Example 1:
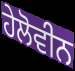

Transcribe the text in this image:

ਹੇਲੋਵੀਨ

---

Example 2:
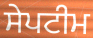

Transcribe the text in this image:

ਸੇਪਟੀਮ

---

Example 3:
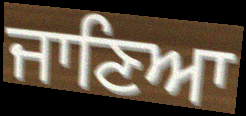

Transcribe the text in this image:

ਜਾਣਿਆ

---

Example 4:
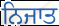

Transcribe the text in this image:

ਨਿਜਾਤ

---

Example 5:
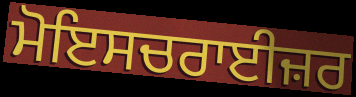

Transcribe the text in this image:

ਮੋਇਸਚਰਾਈਜ਼ਰ